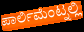
ಪಾರ್ಲಿಮೆಂಟ್ನಲ್ಲಿ